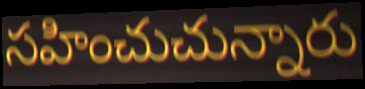
సహించుచున్నారు